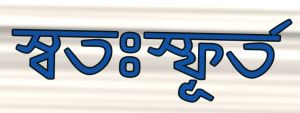
স্বতঃস্ফূৰ্ত